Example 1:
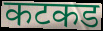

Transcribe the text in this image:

कटकड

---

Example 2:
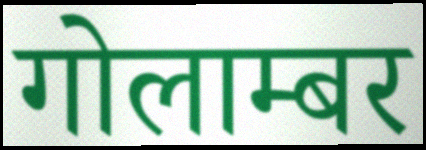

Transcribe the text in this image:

गोलाम्बर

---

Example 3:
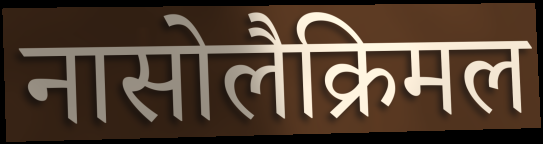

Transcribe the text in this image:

नासोलैक्रिमल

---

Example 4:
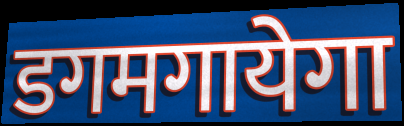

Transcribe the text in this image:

डगमगायेगा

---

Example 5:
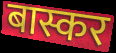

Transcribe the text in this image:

बास्कर